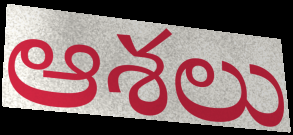
ఆశలు